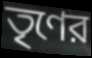
তৃণের